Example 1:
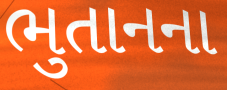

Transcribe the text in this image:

ભુતાનના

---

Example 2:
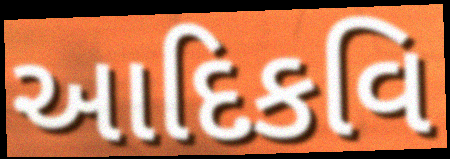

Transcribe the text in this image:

આદિકવિ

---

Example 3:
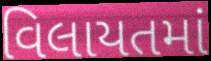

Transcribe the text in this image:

વિલાયતમાં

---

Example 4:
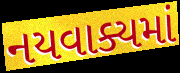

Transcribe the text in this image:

નયવાક્યમાં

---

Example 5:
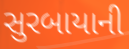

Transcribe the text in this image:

સુરબાયાની